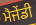
ਮੈਜੇਂਡੀ